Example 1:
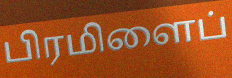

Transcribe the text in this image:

பிரமிளைப்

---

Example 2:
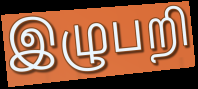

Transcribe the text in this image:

இழுபறி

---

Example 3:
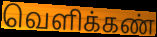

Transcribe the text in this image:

வெளிக்கண்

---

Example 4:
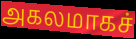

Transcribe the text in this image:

அகலமாகச்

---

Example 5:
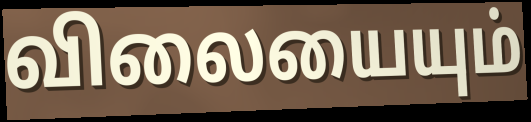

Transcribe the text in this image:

விலையையும்